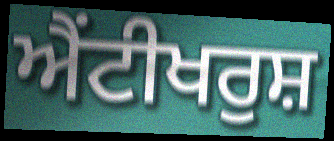
ਐਂਟੀਖਰੁਸ਼